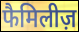
फैमिलीज़